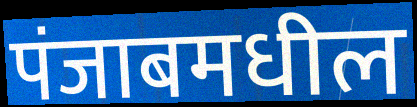
पंजाबमधील